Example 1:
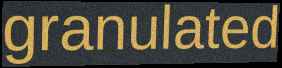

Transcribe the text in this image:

granulated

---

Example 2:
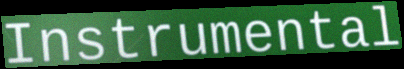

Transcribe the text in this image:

Instrumental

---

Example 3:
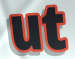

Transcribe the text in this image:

ut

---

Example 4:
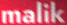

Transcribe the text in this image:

malik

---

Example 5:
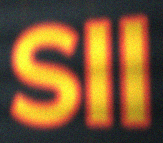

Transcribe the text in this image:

SII